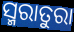
ସ୍ମରାତୁରା